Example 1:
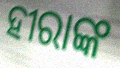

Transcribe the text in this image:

ହୀରାଙ୍କ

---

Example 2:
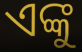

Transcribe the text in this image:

ଏଙ୍କୁ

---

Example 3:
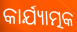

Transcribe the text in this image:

କାର୍ଯ୍ୟାତ୍ମକ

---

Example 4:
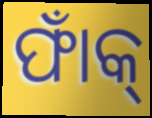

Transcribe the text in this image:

ଫାଁକ୍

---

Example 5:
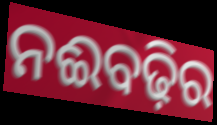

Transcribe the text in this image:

ନଈବଢ଼ିର